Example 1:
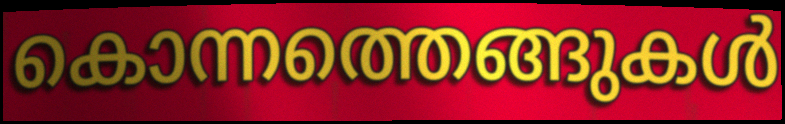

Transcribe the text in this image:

കൊന്നത്തെങ്ങുകൾ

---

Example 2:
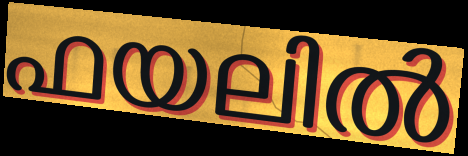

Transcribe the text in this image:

ഫയലിൽ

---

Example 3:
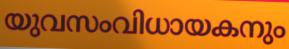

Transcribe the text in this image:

യുവസംവിധായകനും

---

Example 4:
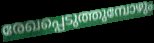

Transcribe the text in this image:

രേഖപ്പെടുത്തുമ്പോഴും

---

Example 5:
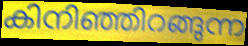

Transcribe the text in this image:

കിനിഞ്ഞിറങ്ങുന്ന